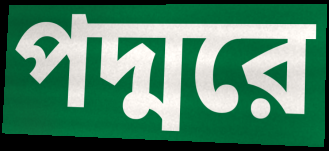
পদ্মরে